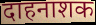
दाहनाशक